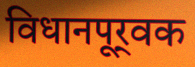
विधानपूर्वक